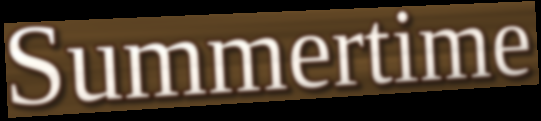
Summertime